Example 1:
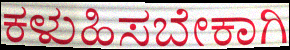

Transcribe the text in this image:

ಕಳುಹಿಸಬೇಕಾಗಿ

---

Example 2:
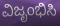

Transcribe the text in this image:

ವಿಜೃಂಭಿಸಿ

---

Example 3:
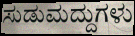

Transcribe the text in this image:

ಸುಡುಮದ್ದುಗಳು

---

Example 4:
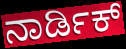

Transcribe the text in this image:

ನಾರ್ಡಿಕ್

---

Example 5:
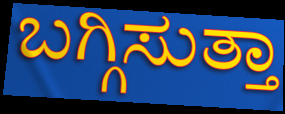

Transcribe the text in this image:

ಬಗ್ಗಿಸುತ್ತಾ